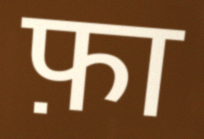
फ़ा